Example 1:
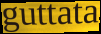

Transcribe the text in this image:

guttata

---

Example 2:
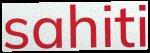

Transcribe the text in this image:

sahiti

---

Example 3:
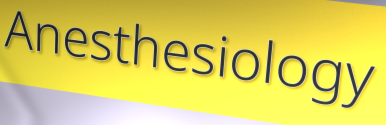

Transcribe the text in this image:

Anesthesiology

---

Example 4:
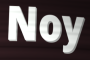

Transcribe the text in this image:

Noy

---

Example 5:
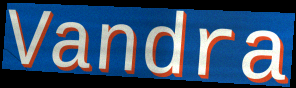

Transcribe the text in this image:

Vandra